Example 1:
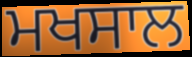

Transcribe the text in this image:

ਮਖਸਾਲ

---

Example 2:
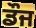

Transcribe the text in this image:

ਡੌਜ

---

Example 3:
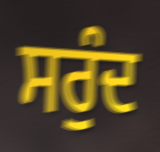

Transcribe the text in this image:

ਸਰੁੰਦ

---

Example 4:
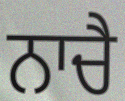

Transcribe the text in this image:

ਨਾਚੈ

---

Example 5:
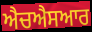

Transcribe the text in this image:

ਐਚਐਸਆਰ